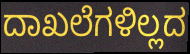
ದಾಖಲೆಗಳಿಲ್ಲದ